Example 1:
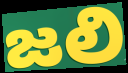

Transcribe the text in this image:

జలి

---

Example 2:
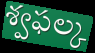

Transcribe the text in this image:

శ్వఫల్క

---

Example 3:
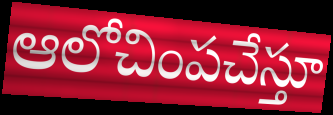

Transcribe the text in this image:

ఆలోచింపచేస్తూ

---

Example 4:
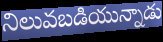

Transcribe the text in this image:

నిలువబడియున్నాడు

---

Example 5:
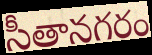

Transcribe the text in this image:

సీతానగరం